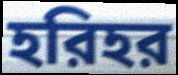
হরিহর